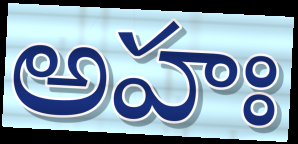
అహః